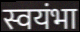
स्वयंभा